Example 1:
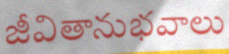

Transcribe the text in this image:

జీవితానుభవాలు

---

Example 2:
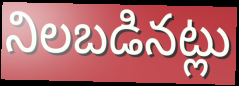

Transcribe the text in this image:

నిలబడినట్లు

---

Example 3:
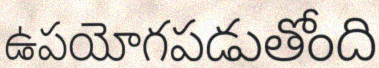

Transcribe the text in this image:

ఉపయోగపడుతోంది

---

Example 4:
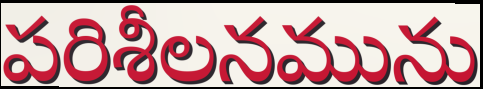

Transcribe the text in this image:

పరిశీలనమును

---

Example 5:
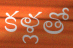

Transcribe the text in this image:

కళ్లతో